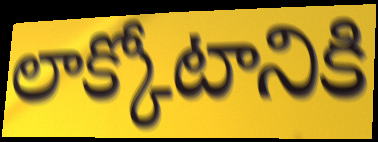
లాక్కోటానికి